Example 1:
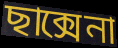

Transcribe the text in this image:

ছাক্সেনা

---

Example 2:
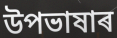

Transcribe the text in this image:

উপভাষাৰ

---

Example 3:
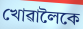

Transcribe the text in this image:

খোৱালৈকে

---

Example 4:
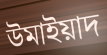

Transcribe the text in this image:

উমাইয়াদ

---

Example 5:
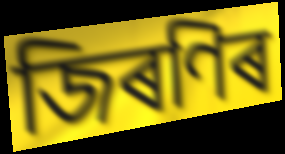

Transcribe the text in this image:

জিৰণিৰ